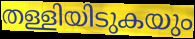
തള്ളിയിടുകയും